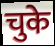
चुके